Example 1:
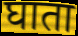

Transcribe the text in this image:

घाता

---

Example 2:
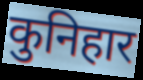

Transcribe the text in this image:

कुनिहार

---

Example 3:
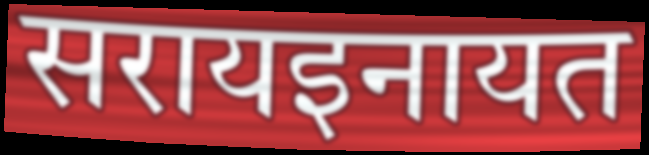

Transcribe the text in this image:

सरायइनायत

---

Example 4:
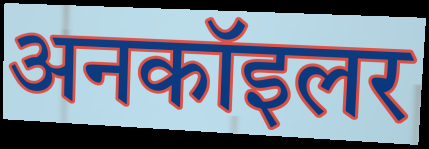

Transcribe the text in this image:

अनकॉइलर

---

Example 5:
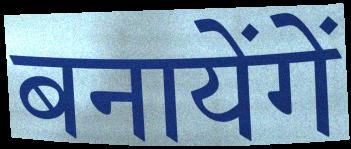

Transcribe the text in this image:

बनायेंगें